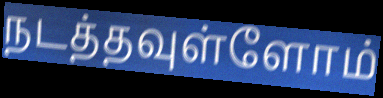
நடத்தவுள்ளோம்